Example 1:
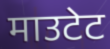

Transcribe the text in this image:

माउटेट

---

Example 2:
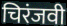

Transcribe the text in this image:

चिरंजवी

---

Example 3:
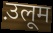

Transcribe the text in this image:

उ़लूम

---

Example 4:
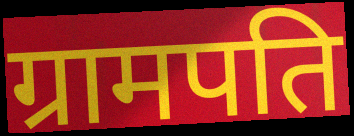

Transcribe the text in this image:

ग्रामपति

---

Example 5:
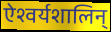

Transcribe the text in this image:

ऐश्वर्यशालिन्